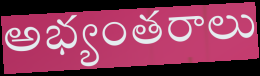
అభ్యంతరాలు